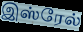
இஸ்ரேல்